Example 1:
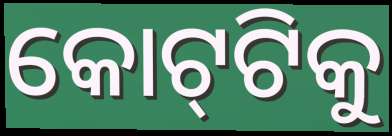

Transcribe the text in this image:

କୋଟ୍‌ଟିକୁ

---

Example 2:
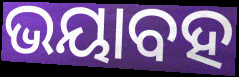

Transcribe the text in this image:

ଭୟାବହ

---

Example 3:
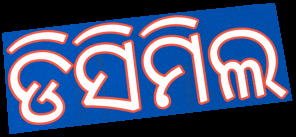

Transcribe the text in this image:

ଡିସିମିଲ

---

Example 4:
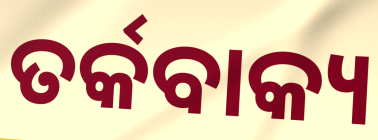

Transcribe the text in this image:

ତର୍କବାକ୍ୟ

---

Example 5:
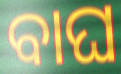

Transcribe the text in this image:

ବାଘ